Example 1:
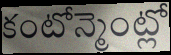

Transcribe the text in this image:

కంటోన్మెంట్లో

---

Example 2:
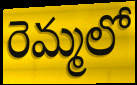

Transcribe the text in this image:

రెమ్మలో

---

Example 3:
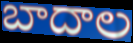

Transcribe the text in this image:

బాదాల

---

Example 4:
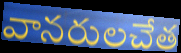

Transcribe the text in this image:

వానరులచేత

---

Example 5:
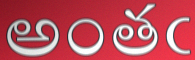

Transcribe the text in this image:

అంతఁ